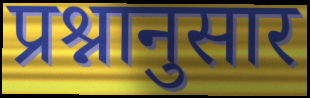
प्रश्नानुसार